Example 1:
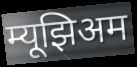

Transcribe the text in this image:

म्यूझिअम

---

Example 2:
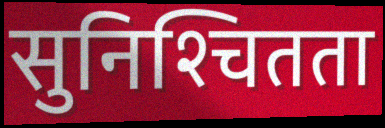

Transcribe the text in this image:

सुनिश्चितता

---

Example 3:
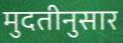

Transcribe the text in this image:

मुदतीनुसार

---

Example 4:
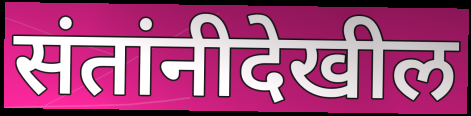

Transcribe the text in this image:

संतांनीदेखील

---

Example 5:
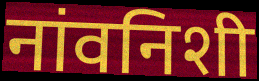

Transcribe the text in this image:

नांवनिशी